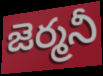
జెర్మనీ